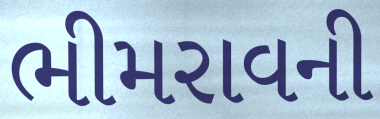
ભીમરાવની